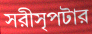
সরীসৃপটার